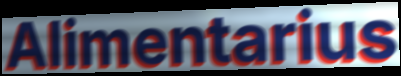
Alimentarius